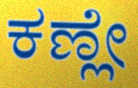
ಕಣ್ಲೇ